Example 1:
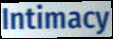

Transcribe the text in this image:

Intimacy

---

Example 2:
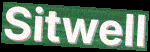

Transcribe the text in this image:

Sitwell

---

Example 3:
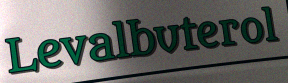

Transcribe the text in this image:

Levalbuterol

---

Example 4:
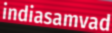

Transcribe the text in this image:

indiasamvad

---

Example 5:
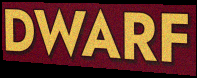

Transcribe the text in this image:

DWARF